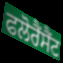
ਫਲੋਰੈਂਸੈਂਟ